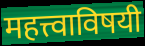
महत्त्वाविषयी